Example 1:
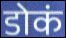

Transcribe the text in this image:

डोकं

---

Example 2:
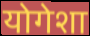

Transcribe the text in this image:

योगेशा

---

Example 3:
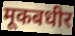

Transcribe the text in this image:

मूकबधीर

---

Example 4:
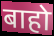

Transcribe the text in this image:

बाहो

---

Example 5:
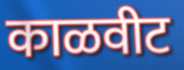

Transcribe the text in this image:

काळवीट